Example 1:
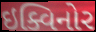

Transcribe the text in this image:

ઇક્વિનોર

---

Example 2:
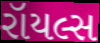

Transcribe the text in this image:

રૉયલ્સ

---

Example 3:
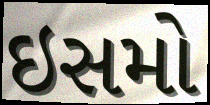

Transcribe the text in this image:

ઇસમો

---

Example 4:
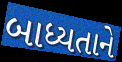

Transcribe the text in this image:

બાધ્યતાને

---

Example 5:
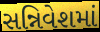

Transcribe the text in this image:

સન્નિવેશમાં